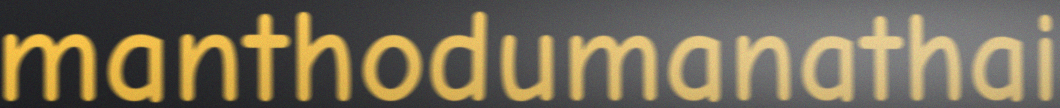
manthodumanathai